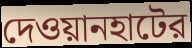
দেওয়ানহাটের